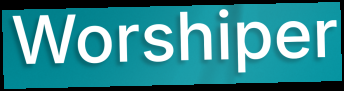
Worshiper